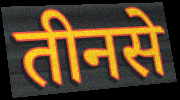
तीनसे